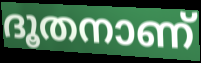
ദൂതനാണ്